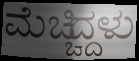
ಮೆಚ್ಚಿದ್ದಳು